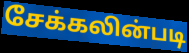
சேக்கலின்படி